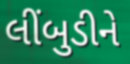
લીંબુડીને